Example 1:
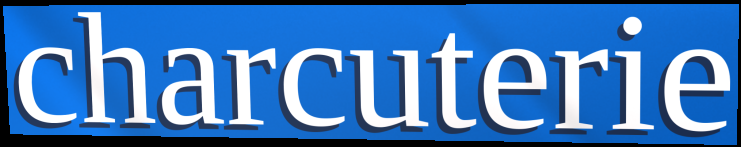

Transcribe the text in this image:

charcuterie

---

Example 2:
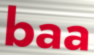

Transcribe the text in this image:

baa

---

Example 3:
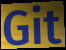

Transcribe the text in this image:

Git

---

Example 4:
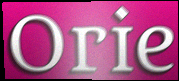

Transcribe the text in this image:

Orie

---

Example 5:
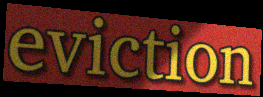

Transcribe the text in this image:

eviction